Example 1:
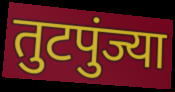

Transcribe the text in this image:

तुटपुंज्या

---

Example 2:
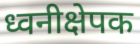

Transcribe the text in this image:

ध्वनीक्षेपक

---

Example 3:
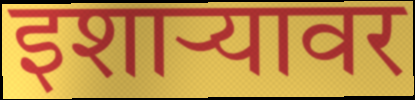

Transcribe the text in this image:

इशाऱ्यावर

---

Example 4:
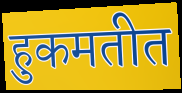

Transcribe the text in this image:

हुकमतीत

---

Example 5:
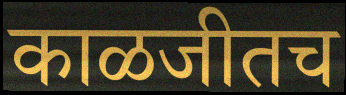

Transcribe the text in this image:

काळजीतच